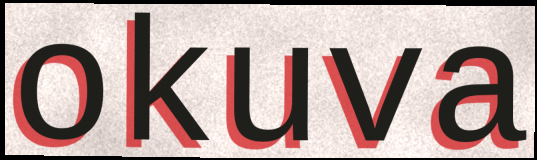
okuva